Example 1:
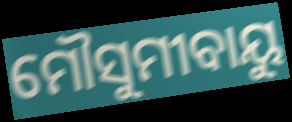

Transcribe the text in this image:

ମୌସୁମୀବାୟୁ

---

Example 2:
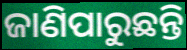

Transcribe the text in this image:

ଜାଣିପାରୁଛନ୍ତି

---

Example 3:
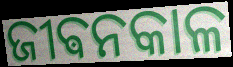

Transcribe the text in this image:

ଜୀଵନକାଳ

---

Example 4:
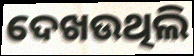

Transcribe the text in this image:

ଦେଖଉଥିଲି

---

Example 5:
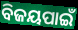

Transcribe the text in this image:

ବିଜୟପାଇଁ